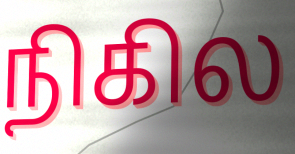
நிகில